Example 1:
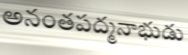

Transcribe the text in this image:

అనంతపద్మనాభుడు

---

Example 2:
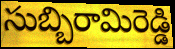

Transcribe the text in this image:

సుబ్బిరామిరెడ్డి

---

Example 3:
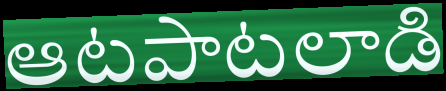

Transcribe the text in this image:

ఆటపాటలాడి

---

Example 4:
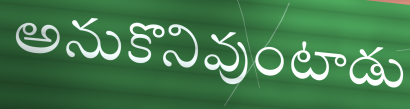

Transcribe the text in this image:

అనుకొనివుంటాడు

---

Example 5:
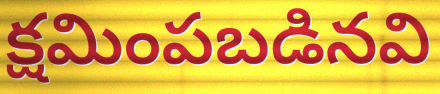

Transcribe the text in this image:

క్షమింపబడినవి